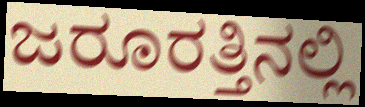
ಜರೂರತ್ತಿನಲ್ಲಿ